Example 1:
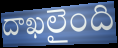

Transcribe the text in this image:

దాఖలైంది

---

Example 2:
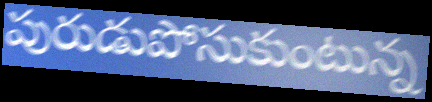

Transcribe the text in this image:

పురుడుపోసుకుంటున్న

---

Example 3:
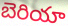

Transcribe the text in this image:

బెరియా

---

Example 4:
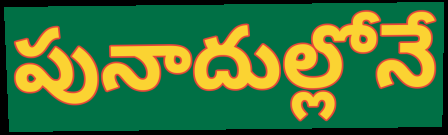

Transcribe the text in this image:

పునాదుల్లోనే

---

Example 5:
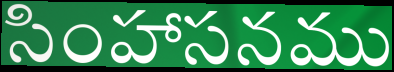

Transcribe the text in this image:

సింహాసనము